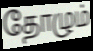
தோழும்